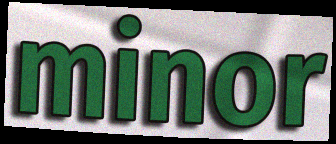
minor